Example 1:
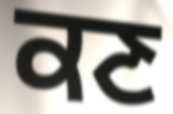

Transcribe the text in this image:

ਕਣ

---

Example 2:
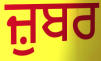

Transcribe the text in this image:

ਜ਼ੁਬਰ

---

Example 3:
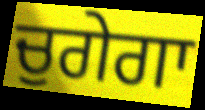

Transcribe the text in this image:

ਚੁਗੇਗਾ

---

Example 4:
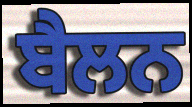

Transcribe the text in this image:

ਬੈਲਨ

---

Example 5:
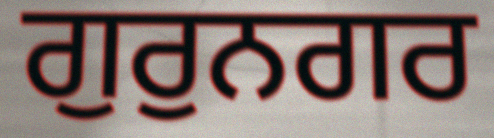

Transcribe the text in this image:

ਗੁਰੁਨਗਰ